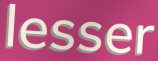
lesser